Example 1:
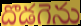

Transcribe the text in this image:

దొడగెను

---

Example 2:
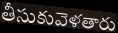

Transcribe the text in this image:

తీసుకువెళతారు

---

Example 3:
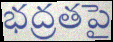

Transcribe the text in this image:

భద్రతపై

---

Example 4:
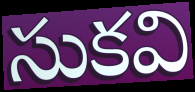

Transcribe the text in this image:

సుకవి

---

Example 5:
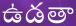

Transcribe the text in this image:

ఉడతా